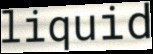
liquid